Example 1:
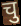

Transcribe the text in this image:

चु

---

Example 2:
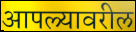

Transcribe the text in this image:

आपल्यावरील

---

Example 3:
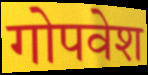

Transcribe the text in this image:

गोपवेश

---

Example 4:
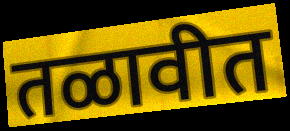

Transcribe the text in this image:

तळावीत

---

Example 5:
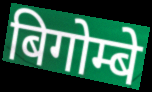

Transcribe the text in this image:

बिगोम्बे